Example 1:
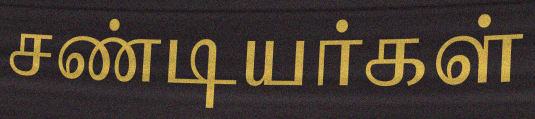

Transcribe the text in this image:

சண்டியர்கள்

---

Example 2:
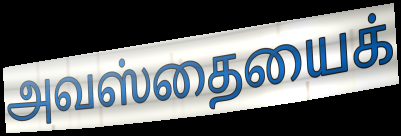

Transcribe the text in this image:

அவஸ்தையைக்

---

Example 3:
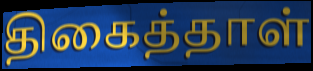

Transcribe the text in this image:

திகைத்தாள்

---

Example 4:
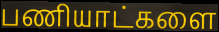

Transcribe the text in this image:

பணியாட்களை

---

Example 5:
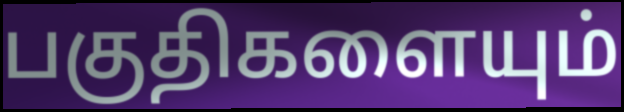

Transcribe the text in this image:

பகுதிகளையும்